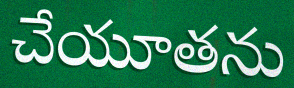
చేయూతను